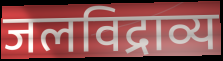
जलविद्राव्य